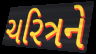
ચરિત્રને